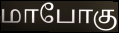
மாபோகு